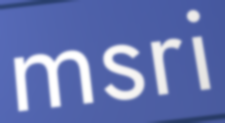
msri